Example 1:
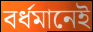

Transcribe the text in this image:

বর্ধমানেই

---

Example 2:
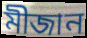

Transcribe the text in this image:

মীজান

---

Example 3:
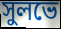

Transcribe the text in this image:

সুলভে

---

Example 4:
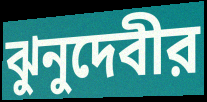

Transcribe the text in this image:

ঝুনুদেবীর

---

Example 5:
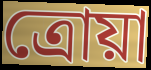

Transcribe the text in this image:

ত্রোয়া